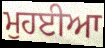
ਮੁਹਈਆ